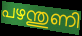
പഴന്തുണി